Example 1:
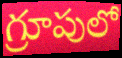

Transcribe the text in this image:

గ్రూపులో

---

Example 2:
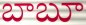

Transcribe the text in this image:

బాబూ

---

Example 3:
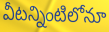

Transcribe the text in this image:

వీటన్నింటిలోనూ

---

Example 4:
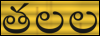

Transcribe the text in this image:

తలల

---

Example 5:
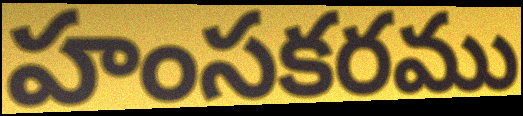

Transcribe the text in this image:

హంసకరము